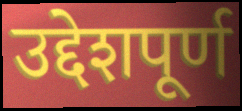
उद्देशपूर्ण